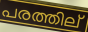
പരത്തില്